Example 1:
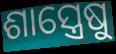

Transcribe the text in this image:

ଶାସ୍ତ୍ରେଷୁ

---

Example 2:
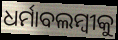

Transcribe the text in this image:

ଧର୍ମାବଲମ୍ବୀକୁ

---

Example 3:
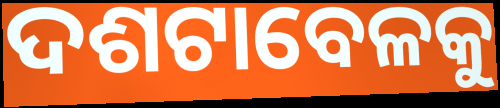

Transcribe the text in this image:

ଦଶଟାବେଳକୁ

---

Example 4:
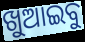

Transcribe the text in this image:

ଖୁଆଇବୁ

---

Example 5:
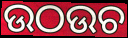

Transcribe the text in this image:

ଉଠଉଚ